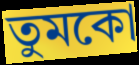
তুমকো